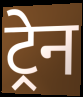
ट्र्रेन